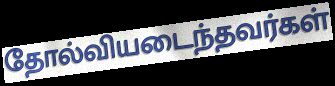
தோல்வியடைந்தவர்கள்